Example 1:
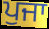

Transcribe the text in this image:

ਪੁਜਾ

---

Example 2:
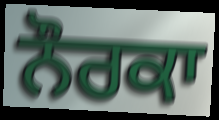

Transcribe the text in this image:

ਨੌਰਕਾ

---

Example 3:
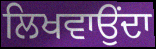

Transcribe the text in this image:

ਲਿਖਵਾਉਂਦਾ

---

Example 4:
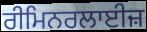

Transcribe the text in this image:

ਰੀਮਿਨਰਲਾਈਜ਼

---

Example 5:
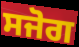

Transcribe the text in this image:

ਸਜੋਗ